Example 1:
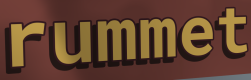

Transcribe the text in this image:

rummet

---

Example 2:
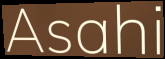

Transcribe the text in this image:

Asahi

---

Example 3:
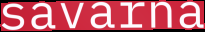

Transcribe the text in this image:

savarna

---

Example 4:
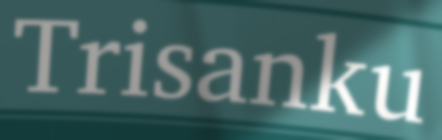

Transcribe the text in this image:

Trisanku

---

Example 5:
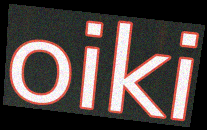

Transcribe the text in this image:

oiki